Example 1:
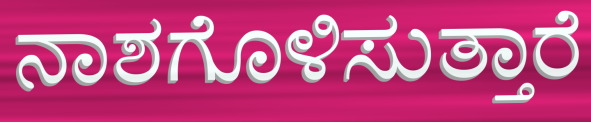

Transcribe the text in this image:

ನಾಶಗೊಳಿಸುತ್ತಾರೆ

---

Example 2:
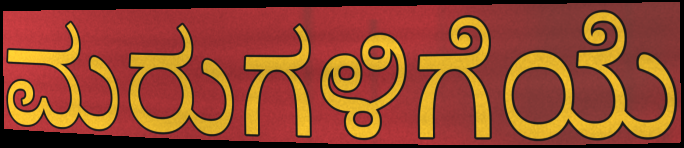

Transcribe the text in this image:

ಮರುಗಳಿಗೆಯೆ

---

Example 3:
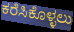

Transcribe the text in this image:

ಕರೆಸಿಕೊಳ್ಳಲು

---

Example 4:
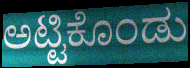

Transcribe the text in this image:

ಅಟ್ಟಿಕೊಂಡು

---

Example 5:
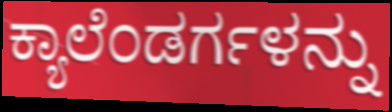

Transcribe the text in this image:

ಕ್ಯಾಲೆಂಡರ್ಗಳನ್ನು